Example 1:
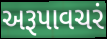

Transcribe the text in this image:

અરૂપાવચરં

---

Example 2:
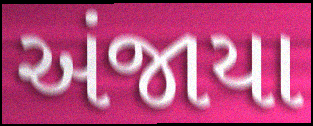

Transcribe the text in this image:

અંજાયા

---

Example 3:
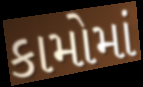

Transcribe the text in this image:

કામોમાં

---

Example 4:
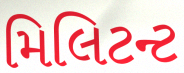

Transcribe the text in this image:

મિલિટન્ટ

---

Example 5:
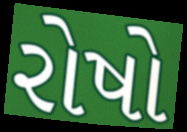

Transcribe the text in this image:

રોષો